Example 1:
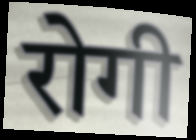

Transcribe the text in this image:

रोगी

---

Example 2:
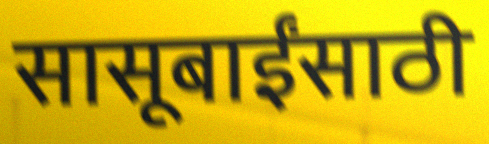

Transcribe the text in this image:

सासूबाईंसाठी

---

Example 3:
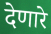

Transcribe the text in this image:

देणारे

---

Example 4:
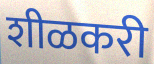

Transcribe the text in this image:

शीळकरी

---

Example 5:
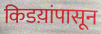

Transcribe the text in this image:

किडय़ांपासून